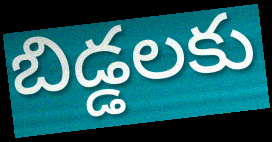
బిడ్డలకు